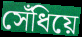
সেঁধিয়ে